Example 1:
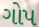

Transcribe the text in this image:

ગોપ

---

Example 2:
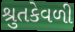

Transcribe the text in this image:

શ્રુતકેવળી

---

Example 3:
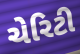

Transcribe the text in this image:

ચેરિટી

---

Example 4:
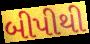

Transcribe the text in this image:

બીપીથી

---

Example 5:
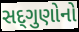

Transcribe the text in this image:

સદ્‌ગુણોનો